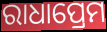
ରାଧାପ୍ରେମ